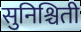
सुनिश्चिती